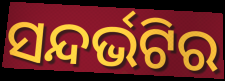
ସନ୍ଦର୍ଭଟିର